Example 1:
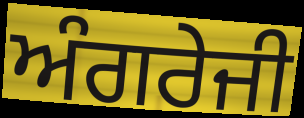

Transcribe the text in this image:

ਅੰਗਰੇਜੀ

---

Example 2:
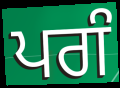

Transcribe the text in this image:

ਪਗੰ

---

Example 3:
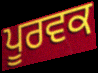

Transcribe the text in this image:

ਪੂਰਵਕ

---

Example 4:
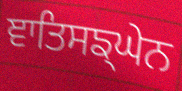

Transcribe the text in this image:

ਞਾਤਿਸਙ੍ਘੇਨ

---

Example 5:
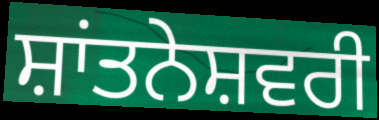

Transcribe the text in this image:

ਸ਼ਾਂਤਨੇਸ਼ਵਰੀ